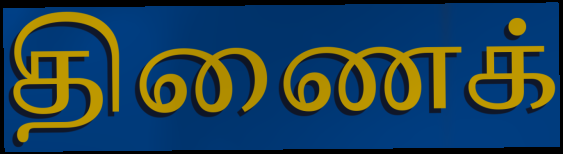
திணைக்